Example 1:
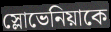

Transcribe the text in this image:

স্লোভেনিয়াকে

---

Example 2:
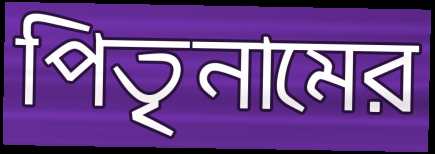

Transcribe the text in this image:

পিতৃনামের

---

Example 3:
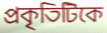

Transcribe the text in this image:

প্রকৃতিটিকে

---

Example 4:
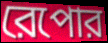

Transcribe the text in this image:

রেপোর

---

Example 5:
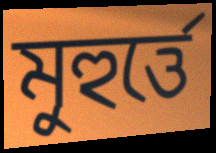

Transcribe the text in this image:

মুহুর্ত্তে